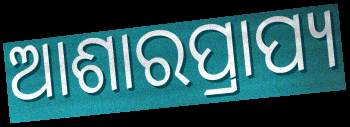
ଆଶାରପ୍ରାପ୍ୟ